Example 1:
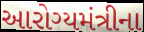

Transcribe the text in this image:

આરોગ્યમંત્રીના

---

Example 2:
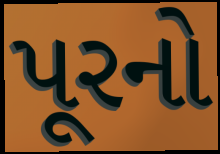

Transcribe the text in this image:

પૂરનો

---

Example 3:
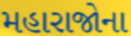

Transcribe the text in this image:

મહારાજોના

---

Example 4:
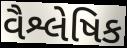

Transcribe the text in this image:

વૈશ્લેષિક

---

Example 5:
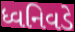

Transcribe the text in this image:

ધ્વનિવડે